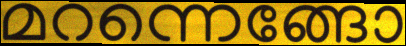
മറന്നെങ്ങോ